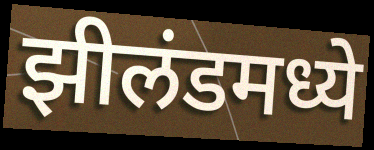
झीलंडमध्ये